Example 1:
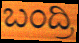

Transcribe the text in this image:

ಬಂದ್ರಿ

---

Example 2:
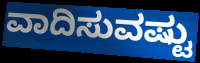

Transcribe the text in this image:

ವಾದಿಸುವಷ್ಟು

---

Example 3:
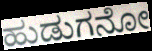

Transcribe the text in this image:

ಹುಡುಗನೋ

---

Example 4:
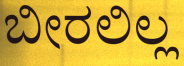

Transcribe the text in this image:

ಬೀರಲಿಲ್ಲ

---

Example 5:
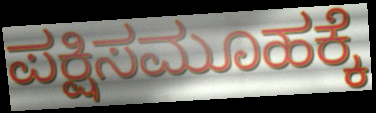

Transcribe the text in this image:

ಪಕ್ಷಿಸಮೂಹಕ್ಕೆ